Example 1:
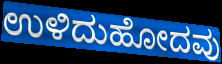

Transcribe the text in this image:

ಉಳಿದುಹೋದವು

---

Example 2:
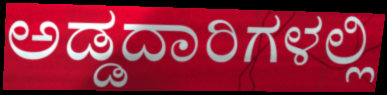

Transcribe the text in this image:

ಅಡ್ಡದಾರಿಗಳಲ್ಲಿ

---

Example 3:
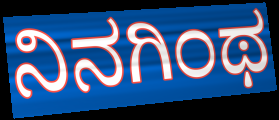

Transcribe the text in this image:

ನಿನಗಿಂಥ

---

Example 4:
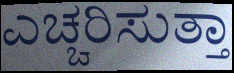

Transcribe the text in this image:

ಎಚ್ಚರಿಸುತ್ತಾ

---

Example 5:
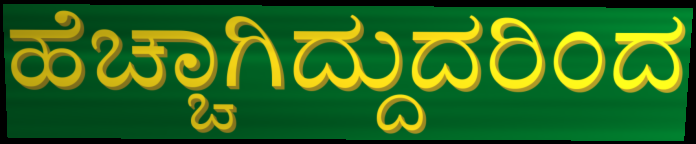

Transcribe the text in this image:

ಹೆಚ್ಚಾಗಿದ್ದುದರಿಂದ